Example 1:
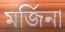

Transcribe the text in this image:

মর্জিনা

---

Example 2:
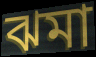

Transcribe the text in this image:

ঝমা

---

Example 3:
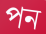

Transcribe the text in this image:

পন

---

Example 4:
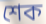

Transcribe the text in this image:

শেক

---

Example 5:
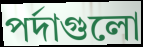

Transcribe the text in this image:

পর্দাগুলো